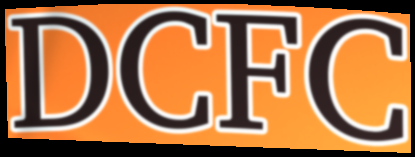
DCFC